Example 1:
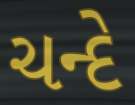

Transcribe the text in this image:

ચન્દે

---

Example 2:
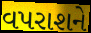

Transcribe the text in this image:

વપરાશને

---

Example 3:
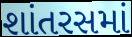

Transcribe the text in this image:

શાંતરસમાં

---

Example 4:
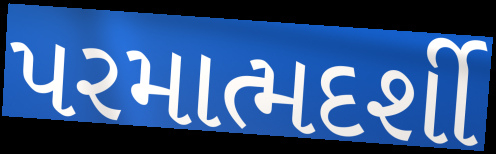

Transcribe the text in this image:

પરમાત્મદર્શી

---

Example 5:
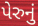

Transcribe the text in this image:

પેરુનું